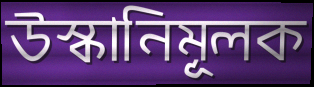
উস্কানিমূলক